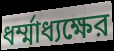
ধর্ম্মাধ্যক্ষের